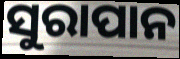
ସୁରାପାନ